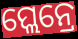
ପ୍ଲେନ୍ରେ